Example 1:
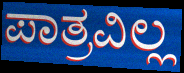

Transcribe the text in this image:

ಪಾತ್ರವಿಲ್ಲ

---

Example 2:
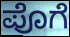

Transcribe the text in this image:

ಪೊಗೆ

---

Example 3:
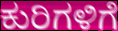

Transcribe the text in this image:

ಕುರಿಗಳಿಗೆ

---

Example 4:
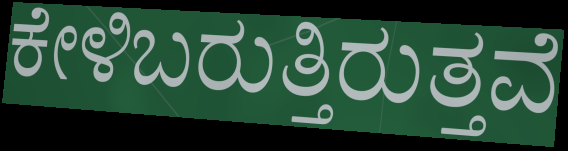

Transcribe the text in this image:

ಕೇಳಿಬರುತ್ತಿರುತ್ತವೆ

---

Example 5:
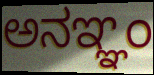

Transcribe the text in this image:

ಅನಞ್ಞಂ